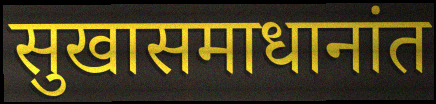
सुखासमाधानांत